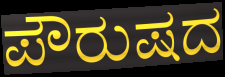
ಪೌರುಷದ